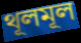
থূলমূল